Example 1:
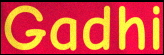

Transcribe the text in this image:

Gadhi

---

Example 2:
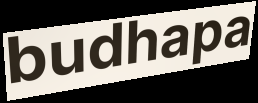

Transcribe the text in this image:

budhapa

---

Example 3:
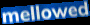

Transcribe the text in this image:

mellowed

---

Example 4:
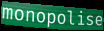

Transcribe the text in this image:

monopolise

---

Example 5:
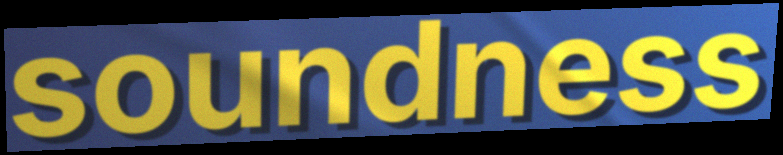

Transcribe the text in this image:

soundness